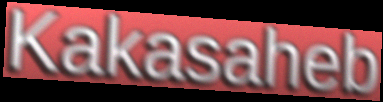
Kakasaheb